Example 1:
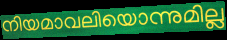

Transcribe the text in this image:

നിയമാവലിയൊന്നുമില്ല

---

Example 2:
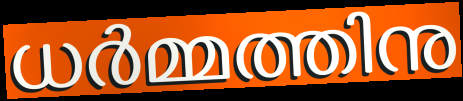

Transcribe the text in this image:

ധർമ്മത്തിനു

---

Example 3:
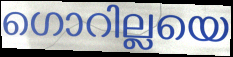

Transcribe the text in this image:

ഗൊറില്ലയെ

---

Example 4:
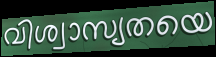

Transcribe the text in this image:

വിശ്വാസ്യതയെ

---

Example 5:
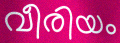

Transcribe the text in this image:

വീരിയം